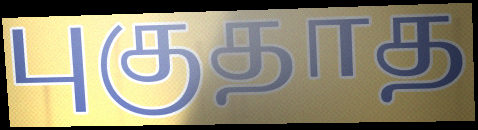
புகுதாத